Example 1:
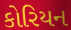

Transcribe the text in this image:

કોરિયન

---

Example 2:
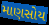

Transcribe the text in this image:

માણસોય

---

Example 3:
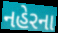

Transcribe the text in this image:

નહેરના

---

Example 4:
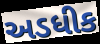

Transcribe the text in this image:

અડધીક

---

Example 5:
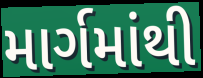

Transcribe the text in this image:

માર્ગમાંથી